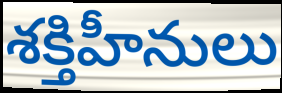
శక్తిహీనులు